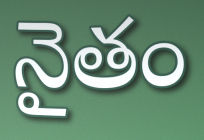
నైతం